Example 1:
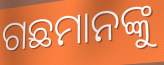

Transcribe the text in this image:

ଗଛମାନଙ୍କୁ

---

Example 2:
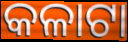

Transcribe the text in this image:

କଳାଟା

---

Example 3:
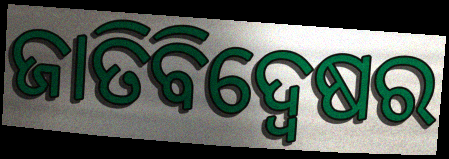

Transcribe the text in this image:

ଜାତିବିଦ୍ୱେଷର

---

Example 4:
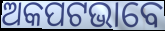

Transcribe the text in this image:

ଅକପଟଭାବେ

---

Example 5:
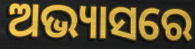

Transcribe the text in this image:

ଅଭ୍ୟାସରେ